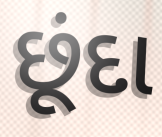
છૂંદા